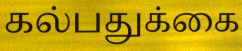
கல்பதுக்கை